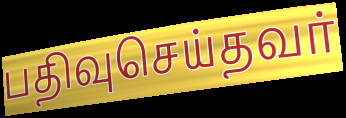
பதிவுசெய்தவர்